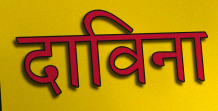
दाविना